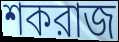
শকরাজ